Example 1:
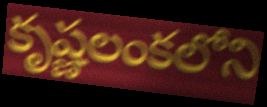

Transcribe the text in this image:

కృష్ణలంకలోని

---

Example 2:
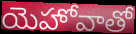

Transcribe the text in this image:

యెహోవాతో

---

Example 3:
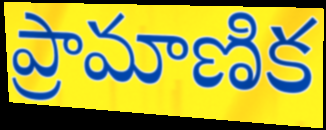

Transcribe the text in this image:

ప్రామాణిక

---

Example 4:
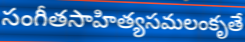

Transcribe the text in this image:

సంగీతసాహిత్యసమలంకృతే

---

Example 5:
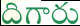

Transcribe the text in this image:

దిగారు